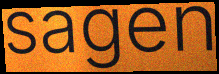
sagen